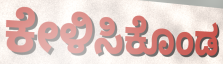
ಕೇಳಿಸಿಕೊಂಡ